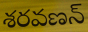
శరవణన్